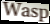
Wasp